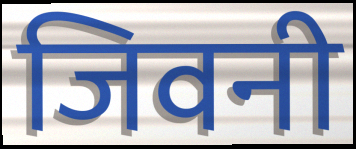
जिवनी